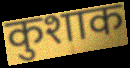
कुशाक